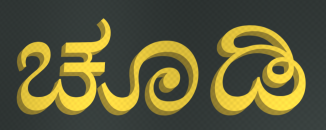
ಚೂಡಿ